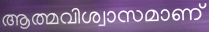
ആത്മവിശ്വാസമാണ്